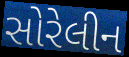
સોરેલીન